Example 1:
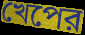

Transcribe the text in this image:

খেপের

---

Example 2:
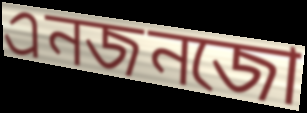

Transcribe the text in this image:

এনজনজো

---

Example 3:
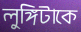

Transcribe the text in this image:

লুঙ্গিটাকে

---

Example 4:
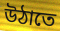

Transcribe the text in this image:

উঠাতে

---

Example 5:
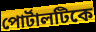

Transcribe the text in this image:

পোর্টালটিকে